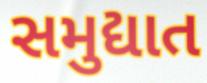
સમુદ્યાત